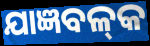
ଯାଜ୍ଞବଳ୍‍କ